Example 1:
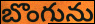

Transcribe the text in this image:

బొంగును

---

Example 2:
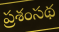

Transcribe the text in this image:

ప్రశంసథ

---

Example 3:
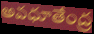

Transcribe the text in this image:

అవధూతేంద్ర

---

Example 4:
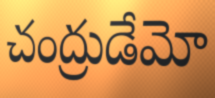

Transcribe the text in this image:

చంద్రుడేమో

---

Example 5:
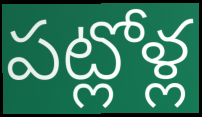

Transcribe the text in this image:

పట్లోళ్ల